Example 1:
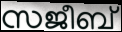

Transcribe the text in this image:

സജീബ്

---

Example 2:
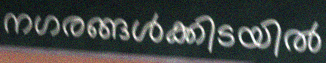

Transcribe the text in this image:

നഗരങ്ങൾക്കിടയിൽ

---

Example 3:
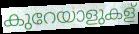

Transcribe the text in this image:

കുറേയാളുകള്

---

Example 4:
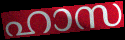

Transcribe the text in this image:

ഹാസ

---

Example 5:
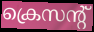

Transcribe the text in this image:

ക്രെസന്റ്